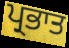
ਪ੍ਰਭਾਤ